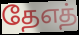
தேஎத்